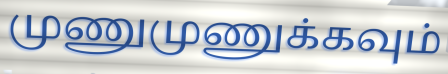
முணுமுணுக்கவும்